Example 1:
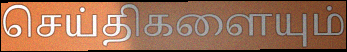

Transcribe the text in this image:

செய்திகளையும்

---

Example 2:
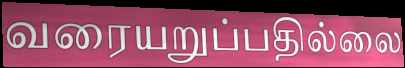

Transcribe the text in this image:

வரையறுப்பதில்லை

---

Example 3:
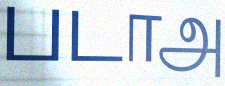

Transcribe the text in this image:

படாஅ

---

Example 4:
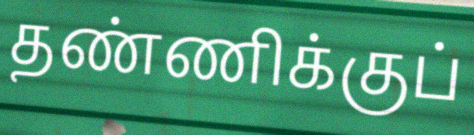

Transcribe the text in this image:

தண்ணிக்குப்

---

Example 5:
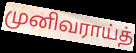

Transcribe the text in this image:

முனிவராய்த்